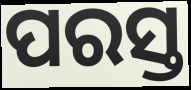
ପରସ୍ତ